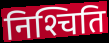
निश्चिति